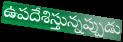
ఉపదేశిస్తున్నప్పుడు